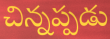
చిన్నప్పడు